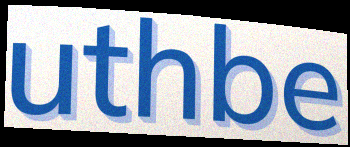
uthbe